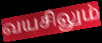
வயசிலும்